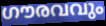
ഗൗരവവും